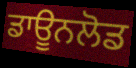
ਡਾਊਨਲੋਡ